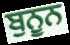
ਬੁਨੂਨ